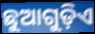
ଛୁଆଗୁଡ଼ିଏ